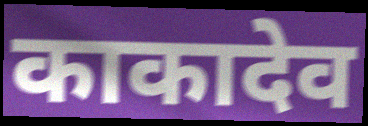
काकादेव